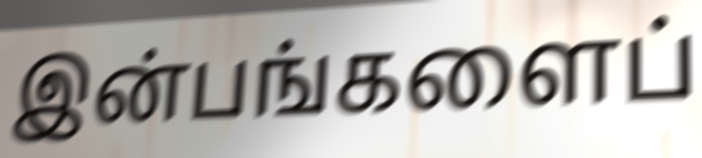
இன்பங்களைப்